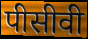
पीसीवी